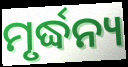
ମୃର୍ଦ୍ଧନ୍ୟ